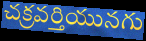
చక్రవర్తియునగు